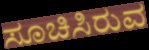
ಸೂಚಿಸಿರುವ